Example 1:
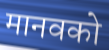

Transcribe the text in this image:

मानवको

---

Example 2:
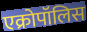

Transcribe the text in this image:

एक्रोपॉलिस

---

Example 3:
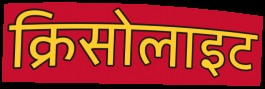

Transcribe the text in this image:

क्रिसोलाइट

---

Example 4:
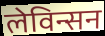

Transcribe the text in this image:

लेविन्सन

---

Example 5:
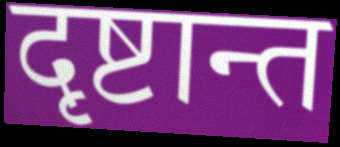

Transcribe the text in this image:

दृष्टान्त